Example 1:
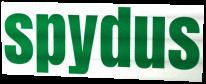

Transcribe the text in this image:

spydus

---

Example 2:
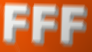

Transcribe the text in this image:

FFF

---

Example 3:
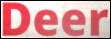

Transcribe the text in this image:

Deer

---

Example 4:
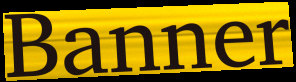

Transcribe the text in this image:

Banner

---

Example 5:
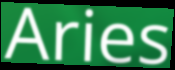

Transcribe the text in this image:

Aries